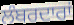
ਲੰਬਰਦਾਰਾਂ